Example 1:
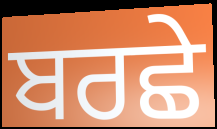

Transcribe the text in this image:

ਬਰਛੇ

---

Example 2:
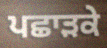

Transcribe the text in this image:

ਪਛਾੜਕੇ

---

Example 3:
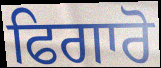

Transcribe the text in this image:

ਫਿਗਾਰੋ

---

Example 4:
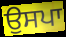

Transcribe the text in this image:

ਉਸਪਾ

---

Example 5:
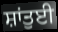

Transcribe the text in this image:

ਸ਼ਾਂਤੁਈ